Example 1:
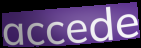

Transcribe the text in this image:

accede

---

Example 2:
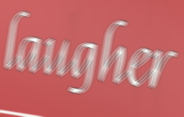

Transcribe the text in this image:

laugher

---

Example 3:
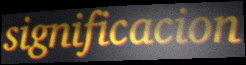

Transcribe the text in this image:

significacion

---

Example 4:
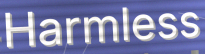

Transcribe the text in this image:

Harmless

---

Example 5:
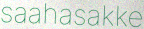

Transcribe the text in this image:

saahasakke